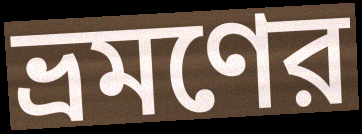
ভ্রমণের